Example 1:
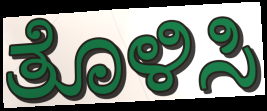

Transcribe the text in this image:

ತೊಳಿಸಿ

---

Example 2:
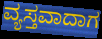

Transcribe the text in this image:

ವ್ಯಸ್ತವಾದಾಗ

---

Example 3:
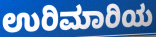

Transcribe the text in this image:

ಉರಿಮಾರಿಯ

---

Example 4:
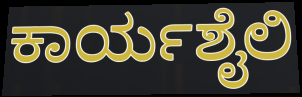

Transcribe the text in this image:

ಕಾರ್ಯಶೈಲಿ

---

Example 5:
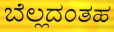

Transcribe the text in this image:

ಬೆಲ್ಲದಂತಹ